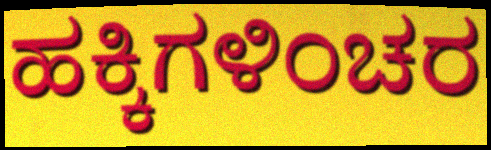
ಹಕ್ಕಿಗಳಿಂಚರ